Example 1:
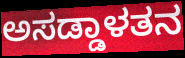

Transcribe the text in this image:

ಅಸಡ್ಡಾಳತನ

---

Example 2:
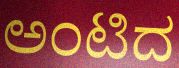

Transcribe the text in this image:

ಅಂಟಿದ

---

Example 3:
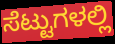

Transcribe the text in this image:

ಸೆಟ್ಟುಗಳಲ್ಲಿ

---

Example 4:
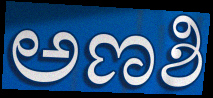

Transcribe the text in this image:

ಅಣಶಿ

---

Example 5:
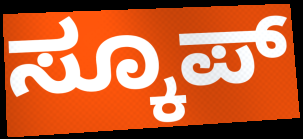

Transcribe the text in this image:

ಸ್ಕೂಪ್